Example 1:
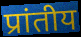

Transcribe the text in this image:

प्रांतीय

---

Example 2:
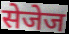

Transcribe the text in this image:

सेजेज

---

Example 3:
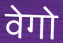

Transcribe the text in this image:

वेगो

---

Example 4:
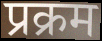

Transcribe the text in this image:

प्रक्रम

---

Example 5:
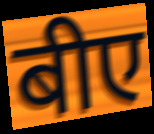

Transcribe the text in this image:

बीए